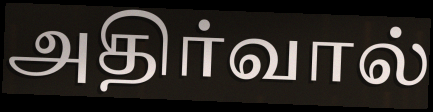
அதிர்வால்